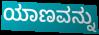
ಯಾಣವನ್ನು